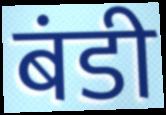
बंडी